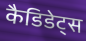
कैडिडेट्स